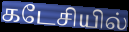
கடேசியில்